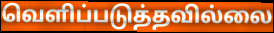
வெளிப்படுத்தவில்லை